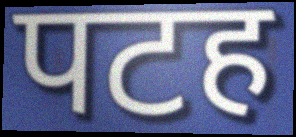
पटह